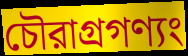
চৌরাগ্রগণ্যং